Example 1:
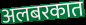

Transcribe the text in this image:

अलबरकात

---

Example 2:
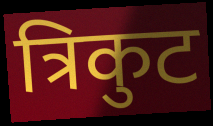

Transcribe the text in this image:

त्रिकुट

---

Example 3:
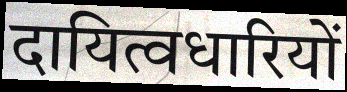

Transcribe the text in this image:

दायित्वधारियों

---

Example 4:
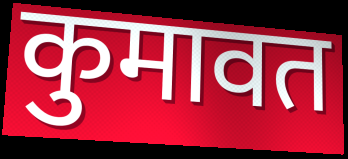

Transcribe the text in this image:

कुमावत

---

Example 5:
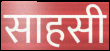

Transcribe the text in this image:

साहसी